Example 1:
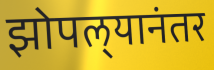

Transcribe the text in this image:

झोपल्यानंतर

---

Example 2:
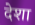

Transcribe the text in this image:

देशा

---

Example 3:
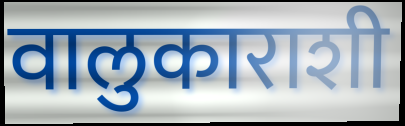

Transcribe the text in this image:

वालुकाराशी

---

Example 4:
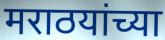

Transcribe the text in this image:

मराठयांच्या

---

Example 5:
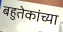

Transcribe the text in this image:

बहुतेकांच्या